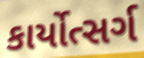
કાર્યોત્સર્ગ